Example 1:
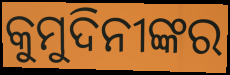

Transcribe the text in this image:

କୁମୁଦିନୀଙ୍କର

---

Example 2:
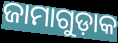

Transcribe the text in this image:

ଜାମାଗୁଡ଼ାକ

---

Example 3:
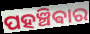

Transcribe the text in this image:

ପହଞ୍ଚିଵାର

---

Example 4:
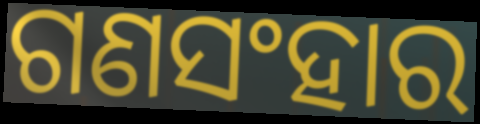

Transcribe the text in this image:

ଗଣସଂହାର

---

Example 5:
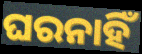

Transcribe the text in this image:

ଘରନାହିଁ